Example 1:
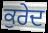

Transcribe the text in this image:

ਕੁਰੇਦ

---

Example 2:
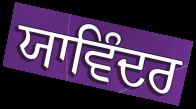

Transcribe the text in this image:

ਯਾਵਿੰਦਰ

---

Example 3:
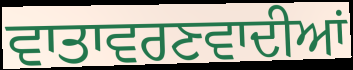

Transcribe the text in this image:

ਵਾਤਾਵਰਣਵਾਦੀਆਂ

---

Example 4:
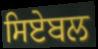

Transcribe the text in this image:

ਸਿਏਬਲ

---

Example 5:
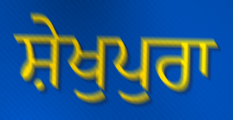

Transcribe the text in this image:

ਸ਼ੇਖੁਪੁਰਾ